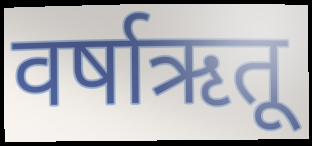
वर्षाऋतू